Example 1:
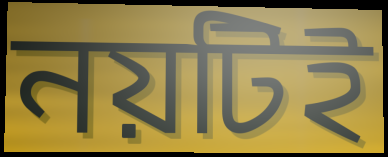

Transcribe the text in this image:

নয়টিই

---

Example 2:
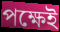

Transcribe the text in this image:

পক্ষেই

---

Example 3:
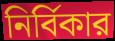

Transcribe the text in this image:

নির্বিকার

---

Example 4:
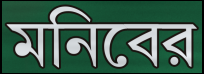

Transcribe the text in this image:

মনিবের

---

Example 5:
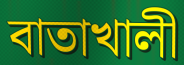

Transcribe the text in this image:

বাতাখালী